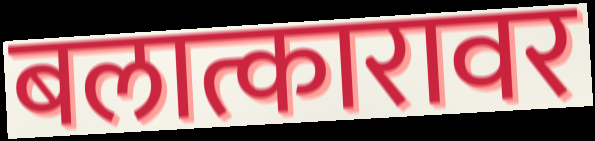
बलात्कारावर